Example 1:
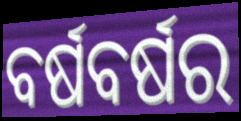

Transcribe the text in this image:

ବର୍ଷବର୍ଷର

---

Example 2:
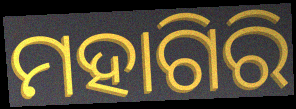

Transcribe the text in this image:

ମହାଗିରି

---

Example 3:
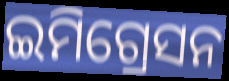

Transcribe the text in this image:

ଇମିଗ୍ରେସନ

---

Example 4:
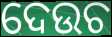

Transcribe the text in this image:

ଦେଉଚ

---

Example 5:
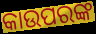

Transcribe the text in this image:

କାଉପରଙ୍କ